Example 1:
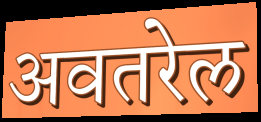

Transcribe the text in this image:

अवतरेल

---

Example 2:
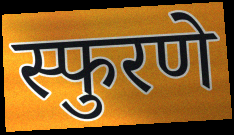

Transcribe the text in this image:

स्फुरणे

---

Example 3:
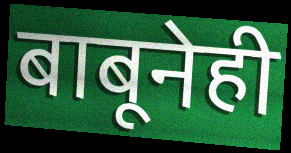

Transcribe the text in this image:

बाबूनेही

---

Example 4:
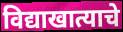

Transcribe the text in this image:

विद्याखात्याचे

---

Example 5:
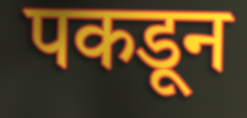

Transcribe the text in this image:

पकडून